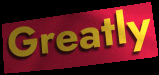
Greatly